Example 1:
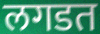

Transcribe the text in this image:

लगडत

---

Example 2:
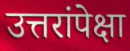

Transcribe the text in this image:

उत्तरांपेक्षा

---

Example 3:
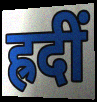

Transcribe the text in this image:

ह्रदीं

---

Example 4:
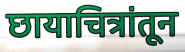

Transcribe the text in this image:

छायाचित्रांतून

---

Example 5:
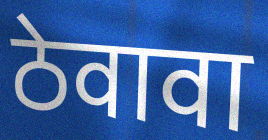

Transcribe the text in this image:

ठेवावा